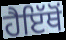
ਹੈਇੱਥੋਂ